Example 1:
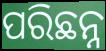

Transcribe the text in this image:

ପରିଛନ୍ନ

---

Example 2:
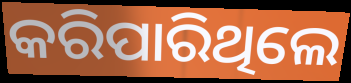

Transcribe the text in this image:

କରିପାରିଥିଲେ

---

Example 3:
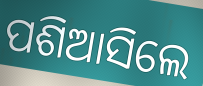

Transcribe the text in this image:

ପଶିଆସିଲେ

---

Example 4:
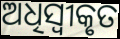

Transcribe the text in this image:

ଅଧିସ୍ୱୀକୃତ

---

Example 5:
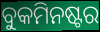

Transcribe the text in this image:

ବୁକମିନଷ୍ଟର